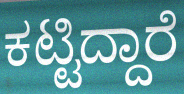
ಕಟ್ಟಿದ್ದಾರೆ